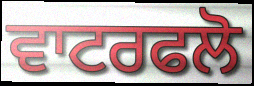
ਵਾਟਰਫਲੋ